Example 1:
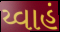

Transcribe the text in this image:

ય્વાહં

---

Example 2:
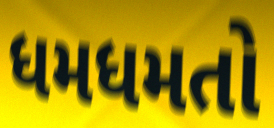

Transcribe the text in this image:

ધમધમતો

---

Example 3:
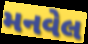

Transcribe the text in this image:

મનવેલ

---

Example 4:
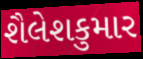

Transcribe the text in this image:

શૈલેશકુમાર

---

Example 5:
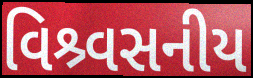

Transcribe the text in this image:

વિશ્ર્વસનીય